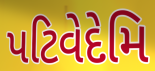
પટિવેદેમિ